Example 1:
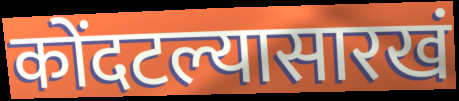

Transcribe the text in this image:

कोंदटल्यासारखं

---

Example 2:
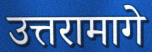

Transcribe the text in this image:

उत्तरामागे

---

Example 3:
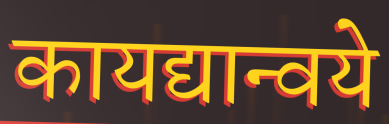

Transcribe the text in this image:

कायद्यान्वये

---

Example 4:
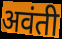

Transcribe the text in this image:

अवंती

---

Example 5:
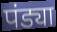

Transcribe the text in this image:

पंड्या